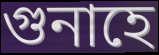
গুনাহে